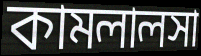
কামলালসা